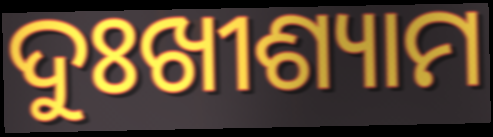
ଦୁଃଖୀଶ୍ୟାମ